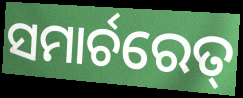
ସମାର୍ଚରେତ୍